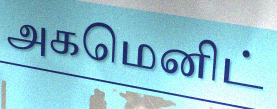
அகமெனிட்